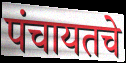
पंचायतचे